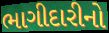
ભાગીદારીનો